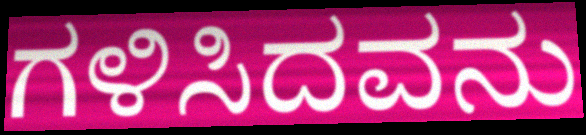
ಗಳಿಸಿದವನು